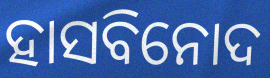
ହାସବିନୋଦ